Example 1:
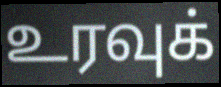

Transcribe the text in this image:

உரவுக்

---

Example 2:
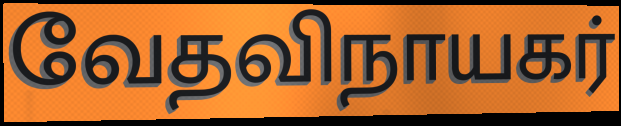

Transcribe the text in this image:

வேதவிநாயகர்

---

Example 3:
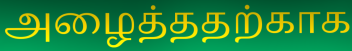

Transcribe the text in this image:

அழைத்ததற்காக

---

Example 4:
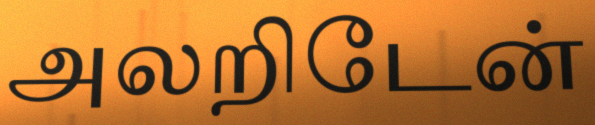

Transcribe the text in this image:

அலறிடேன்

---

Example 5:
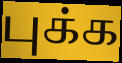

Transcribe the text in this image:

புக்க